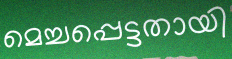
മെച്ചപ്പെട്ടതായി